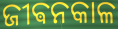
ଜୀଵନକାଳ